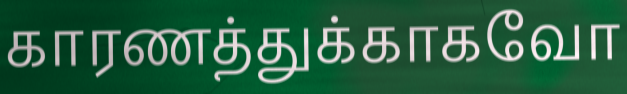
காரணத்துக்காகவோ